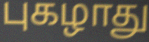
புகழாது